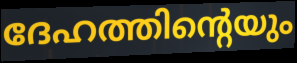
ദേഹത്തിന്റെയും